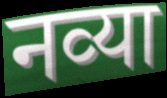
नव्‍या